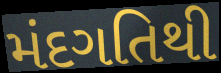
મંદગતિથી